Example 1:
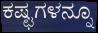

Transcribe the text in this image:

ಕಷ್ಟಗಳನ್ನೂ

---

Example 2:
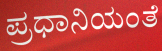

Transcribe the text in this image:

ಪ್ರಧಾನಿಯಂತೆ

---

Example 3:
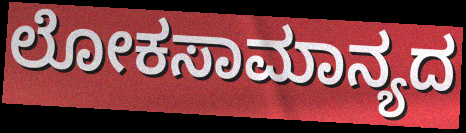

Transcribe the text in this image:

ಲೋಕಸಾಮಾನ್ಯದ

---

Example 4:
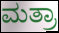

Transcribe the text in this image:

ಮತ್ರಾ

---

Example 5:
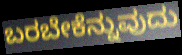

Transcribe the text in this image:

ಬರಬೇಕೆನ್ನುವುದು